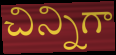
చిన్నిగా